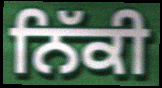
ਨਿੱਕੀ